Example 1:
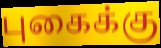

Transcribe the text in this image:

புகைக்கு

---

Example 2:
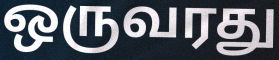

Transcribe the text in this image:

ஒருவரது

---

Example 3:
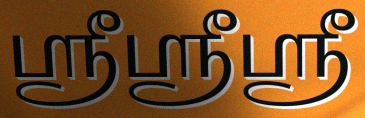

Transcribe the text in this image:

ஸ்ரீஸ்ரீஸ்ரீ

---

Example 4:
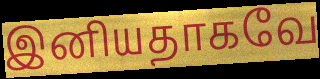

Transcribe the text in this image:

இனியதாகவே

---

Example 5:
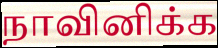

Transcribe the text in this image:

நாவினிக்க